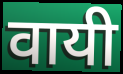
वायी